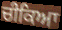
ਚੀਕਿਆ